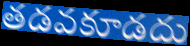
తడవకూడదు